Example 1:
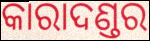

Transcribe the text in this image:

କାରାଦଣ୍ଡର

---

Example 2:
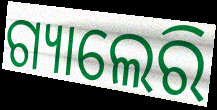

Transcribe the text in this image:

ଗ୍ୟାଲେରି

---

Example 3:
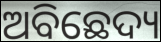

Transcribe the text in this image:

ଅବିଛେଦ୍ୟ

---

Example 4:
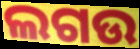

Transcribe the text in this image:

ଲଗଉ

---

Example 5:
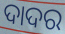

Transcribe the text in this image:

ଦାଦର